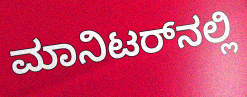
ಮಾನಿಟರ್‌ನಲ್ಲಿ